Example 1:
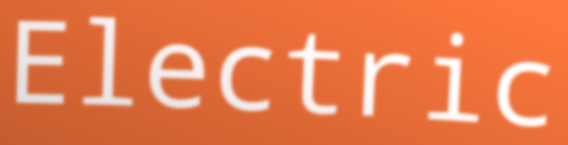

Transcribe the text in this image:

Electric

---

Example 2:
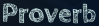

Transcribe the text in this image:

Proverb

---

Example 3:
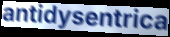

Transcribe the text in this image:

antidysentrica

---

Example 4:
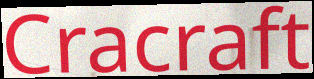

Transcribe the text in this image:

Cracraft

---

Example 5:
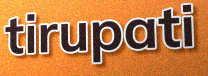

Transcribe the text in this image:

tirupati